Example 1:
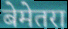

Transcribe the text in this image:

बेमेतरा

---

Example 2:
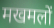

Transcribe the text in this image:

मखमलों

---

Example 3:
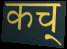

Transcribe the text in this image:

कच्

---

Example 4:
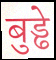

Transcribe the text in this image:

बुड्ढे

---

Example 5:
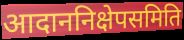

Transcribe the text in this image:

आदाननिक्षेपसमिति